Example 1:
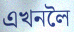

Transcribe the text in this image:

এখনলৈ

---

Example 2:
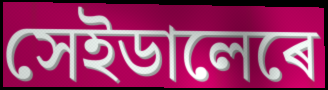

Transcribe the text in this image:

সেইডালেৰে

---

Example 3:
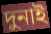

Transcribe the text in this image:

দুনাই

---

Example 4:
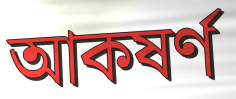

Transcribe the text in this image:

আকষৰ্ণ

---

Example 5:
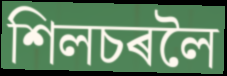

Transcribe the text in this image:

শিলচৰলৈ